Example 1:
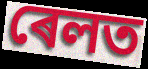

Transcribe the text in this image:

ৰেলত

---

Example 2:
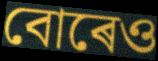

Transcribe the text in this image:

বোৰেও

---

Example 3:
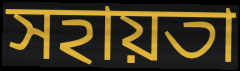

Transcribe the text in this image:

সহায়তা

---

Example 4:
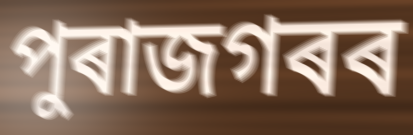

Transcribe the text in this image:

পুৰাজগৰৰ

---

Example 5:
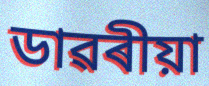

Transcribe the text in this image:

ডাৱৰীয়া